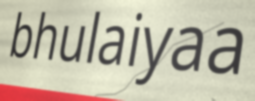
bhulaiyaa